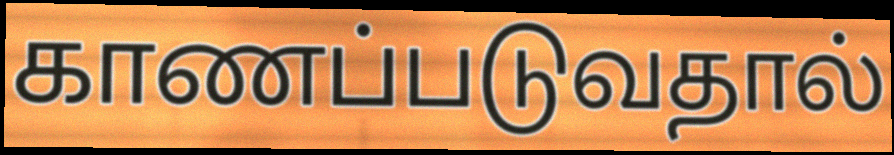
காணப்படுவதால்